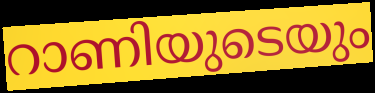
റാണിയുടെയും